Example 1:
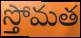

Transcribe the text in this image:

స్తోమత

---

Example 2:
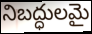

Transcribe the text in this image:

నిబద్ధులమై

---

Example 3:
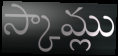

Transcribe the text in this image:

స్కామ్లు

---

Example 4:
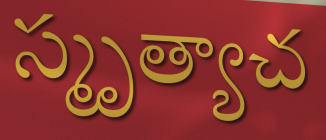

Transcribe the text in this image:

స్మృత్యాచ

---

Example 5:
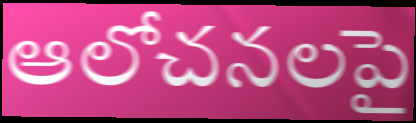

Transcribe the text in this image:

ఆలోచనలపై